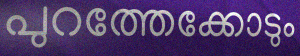
പുറത്തേക്കോടും